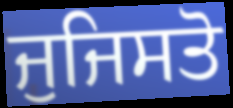
ਜੁਜਿਸਤੋ